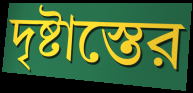
দৃষ্টাস্তের